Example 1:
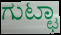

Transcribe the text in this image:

ಗುಟ್ಟಾ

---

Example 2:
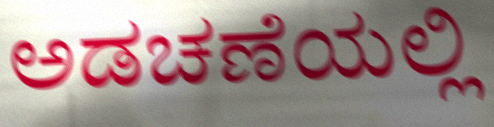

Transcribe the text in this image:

ಅಡಚಣೆಯಲ್ಲಿ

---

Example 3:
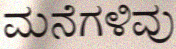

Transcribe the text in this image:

ಮನೆಗಳಿವು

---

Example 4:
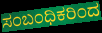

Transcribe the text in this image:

ಸಂಬಂಧಿಕರಿಂದ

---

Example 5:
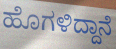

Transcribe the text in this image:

ಹೊಗಳಿದ್ದಾನೆ